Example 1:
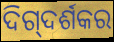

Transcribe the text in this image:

ଦିଗ୍‌ଦର୍ଶକର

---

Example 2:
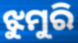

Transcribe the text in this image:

ଝୁମୁରି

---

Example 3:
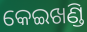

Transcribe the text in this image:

କେଇଖଣ୍ଡି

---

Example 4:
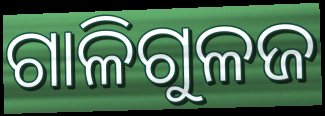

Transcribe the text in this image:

ଗାଳିଗୁଳଜ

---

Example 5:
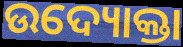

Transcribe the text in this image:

ଉଦ୍ୟୋକ୍ତା